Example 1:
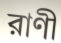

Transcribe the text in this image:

রাণী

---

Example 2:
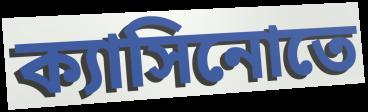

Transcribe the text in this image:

ক্যাসিনোতে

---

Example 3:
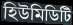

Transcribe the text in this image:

হিউমিডিটি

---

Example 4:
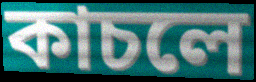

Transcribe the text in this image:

কাচলে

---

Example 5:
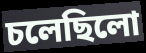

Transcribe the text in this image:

চলেছিলো